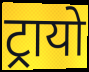
ट्रायो